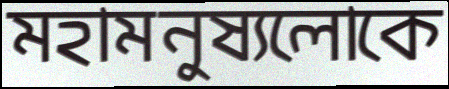
মহামনুষ্যলোকে